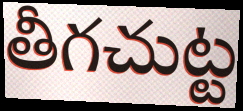
తీగచుట్ట